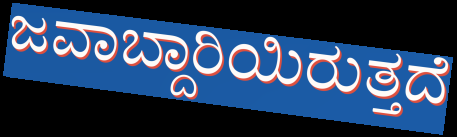
ಜವಾಬ್ದಾರಿಯಿರುತ್ತದೆ